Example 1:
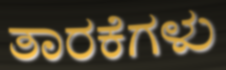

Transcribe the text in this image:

ತಾರಕೆಗಳು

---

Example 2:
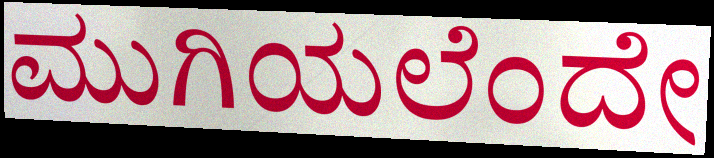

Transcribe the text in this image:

ಮುಗಿಯಲೆಂದೇ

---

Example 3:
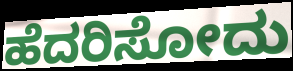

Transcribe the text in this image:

ಹೆದರಿಸೋದು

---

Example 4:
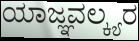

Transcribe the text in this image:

ಯಾಜ್ಞವಲ್ಕ್ಯರ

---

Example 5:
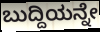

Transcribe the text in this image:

ಬುದ್ದಿಯನ್ನೇ